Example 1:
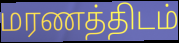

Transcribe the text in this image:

மரணத்திடம்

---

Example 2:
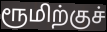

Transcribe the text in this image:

ரூமிற்குச்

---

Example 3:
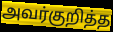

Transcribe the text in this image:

அவர்குறித்த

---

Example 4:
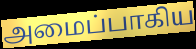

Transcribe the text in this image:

அமைப்பாகிய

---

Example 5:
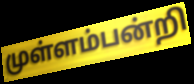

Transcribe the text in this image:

முள்ளம்பன்றி